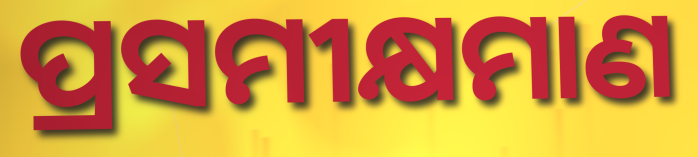
ପ୍ରସମୀକ୍ଷମାଣ